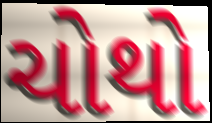
ચોથો